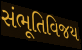
સંભૂતિવિજય